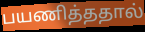
பயணித்ததால்